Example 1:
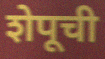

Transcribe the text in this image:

शेपूची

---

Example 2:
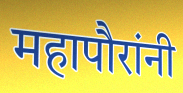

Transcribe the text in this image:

महापौरांनी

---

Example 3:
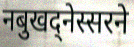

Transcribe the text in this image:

नबुखद्नेस्सरने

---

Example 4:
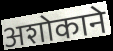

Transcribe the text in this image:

अशोकाने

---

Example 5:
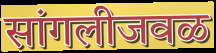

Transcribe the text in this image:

सांगलीजवळ